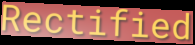
Rectified